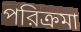
পরিক্রমা